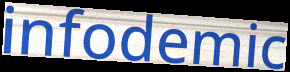
infodemic